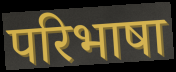
परिभाषा